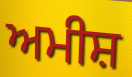
ਅਮੀਸ਼